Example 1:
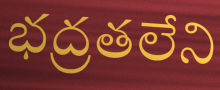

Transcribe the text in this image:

భద్రతలేని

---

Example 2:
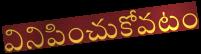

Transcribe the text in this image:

వినిపించుకోవటం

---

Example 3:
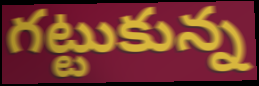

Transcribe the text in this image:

గట్టుకున్న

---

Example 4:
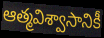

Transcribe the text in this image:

ఆత్మవిశ్వాసానికీ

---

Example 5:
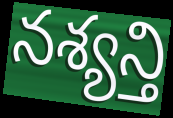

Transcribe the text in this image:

నశ్యన్తి